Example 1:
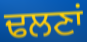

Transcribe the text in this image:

ਢਲਣਾਂ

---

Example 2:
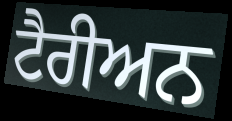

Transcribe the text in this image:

ਟੈਰੀਅਨ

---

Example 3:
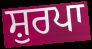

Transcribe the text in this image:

ਸ਼ੁਰਪਾ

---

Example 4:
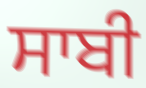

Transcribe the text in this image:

ਸਾਬੀ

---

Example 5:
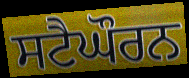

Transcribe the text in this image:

ਸਟੈਘੌਰਨ